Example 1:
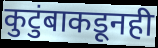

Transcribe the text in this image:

कुटुंबाकडूनही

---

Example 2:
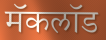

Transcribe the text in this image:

मॅकलॉड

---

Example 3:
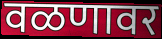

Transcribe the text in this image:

वळणावर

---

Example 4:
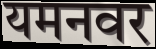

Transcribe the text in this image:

यमनवर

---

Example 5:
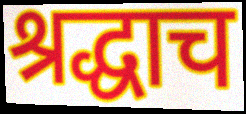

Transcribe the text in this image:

श्रद्धाच